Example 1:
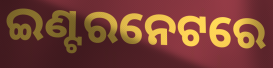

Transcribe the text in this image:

ଇଣ୍ଟରନେଟରେ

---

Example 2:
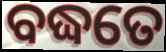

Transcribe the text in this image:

ବଦ୍ଧତେ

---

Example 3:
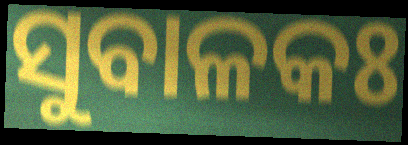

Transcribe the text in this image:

ସୁବାଳକଃ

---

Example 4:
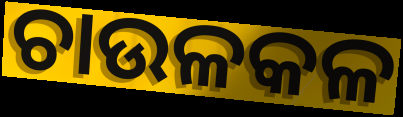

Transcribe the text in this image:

ଚାଉଳକଳ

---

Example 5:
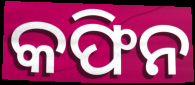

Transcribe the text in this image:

କଫିନ